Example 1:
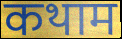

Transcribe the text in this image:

कथाम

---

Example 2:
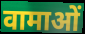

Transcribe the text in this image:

वामाओं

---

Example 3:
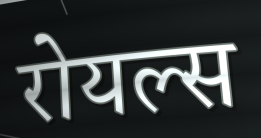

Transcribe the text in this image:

रोयल्स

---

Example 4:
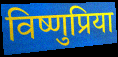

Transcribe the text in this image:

विष्णुप्रिया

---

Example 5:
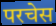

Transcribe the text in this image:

परचेस